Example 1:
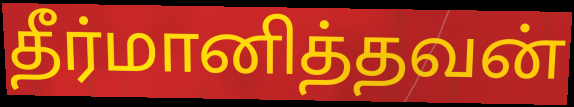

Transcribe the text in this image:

தீர்மானித்தவன்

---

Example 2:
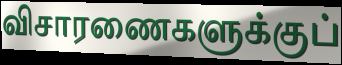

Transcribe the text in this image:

விசாரணைகளுக்குப்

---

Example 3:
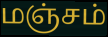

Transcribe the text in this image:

மஞ்சம்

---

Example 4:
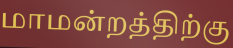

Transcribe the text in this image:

மாமன்றத்திற்கு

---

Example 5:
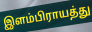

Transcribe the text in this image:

இளம்பிராயத்து